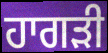
ਹਾਗੜੀ